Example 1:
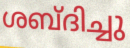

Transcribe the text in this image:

ശബ്ദിച്ചു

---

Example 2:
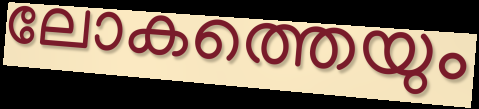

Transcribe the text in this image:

ലോകത്തെയും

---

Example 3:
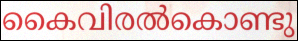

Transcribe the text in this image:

കൈവിരൽകൊണ്ടു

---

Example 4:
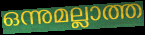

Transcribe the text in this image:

ഒന്നുമല്ലാത്ത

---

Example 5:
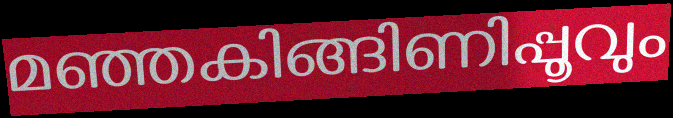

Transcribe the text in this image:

മഞ്ഞകിങ്ങിണിപ്പൂവും